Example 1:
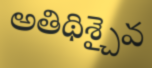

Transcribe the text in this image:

అతిథిశ్చైవ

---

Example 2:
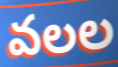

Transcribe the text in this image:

వలల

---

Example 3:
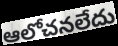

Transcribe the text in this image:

ఆలోచనలేదు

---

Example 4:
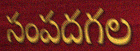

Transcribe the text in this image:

సంపదగల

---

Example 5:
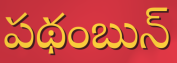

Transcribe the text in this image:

పథంబున్